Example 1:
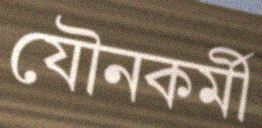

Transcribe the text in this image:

যৌনকৰ্মী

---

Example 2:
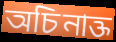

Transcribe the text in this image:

অচিনাক্ত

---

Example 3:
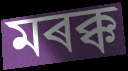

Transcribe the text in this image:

মৰক্ক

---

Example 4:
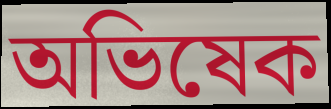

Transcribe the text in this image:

অভিষেক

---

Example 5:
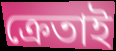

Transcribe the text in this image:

ক্ৰেতাই